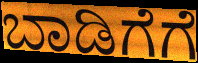
ಬಾಡಿಗೆಗೆ